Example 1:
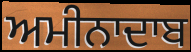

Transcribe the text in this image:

ਅਮੀਨਾਦਾਬ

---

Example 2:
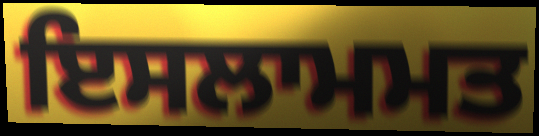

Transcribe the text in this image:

ਇਸਲਾਮਮਤ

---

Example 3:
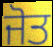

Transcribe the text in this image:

ਜੋਤ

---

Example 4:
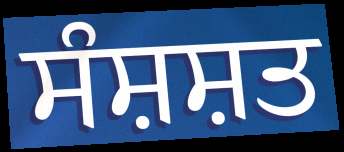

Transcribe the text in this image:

ਸੰਸ਼ਸ਼ਤ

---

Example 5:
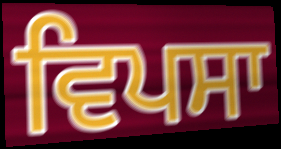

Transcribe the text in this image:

ਵਿਪਸਾ